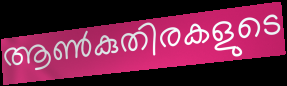
ആൺകുതിരകളുടെ